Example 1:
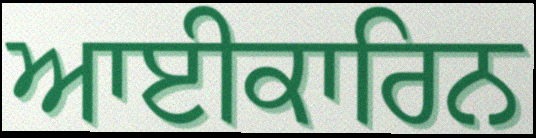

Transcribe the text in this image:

ਆਈਕਾਰਿਨ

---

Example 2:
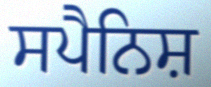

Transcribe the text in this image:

ਸਪੈਨਿਸ਼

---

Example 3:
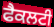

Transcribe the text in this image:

ਫੈਕਲਟੀ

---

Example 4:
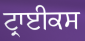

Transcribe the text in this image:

ਟ੍ਰਾਈਕਸ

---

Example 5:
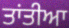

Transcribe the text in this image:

ਤਾਂਤੀਆ